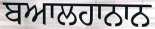
ਬਆਲਹਾਨਾਨ